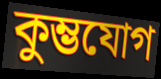
কুম্ভযোগ